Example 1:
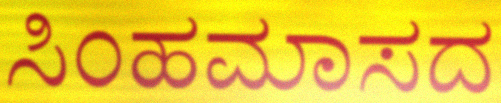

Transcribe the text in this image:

ಸಿಂಹಮಾಸದ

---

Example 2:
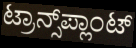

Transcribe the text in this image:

ಟ್ರಾನ್ಸ್‌ಪ್ಲಾಂಟ್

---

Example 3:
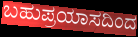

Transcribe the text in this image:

ಬಹುಪ್ರಯಾಸದಿಂದ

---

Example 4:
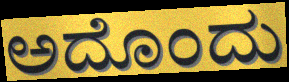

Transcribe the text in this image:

ಅದೊಂದು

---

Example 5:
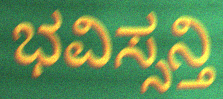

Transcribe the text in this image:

ಭವಿಸ್ಸನ್ತಿ